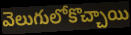
వెలుగులోకొచ్చాయి